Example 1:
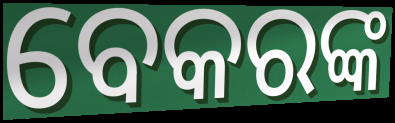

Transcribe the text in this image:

ବେକରଙ୍କ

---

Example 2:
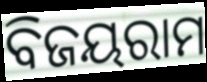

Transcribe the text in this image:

ବିଜୟରାମ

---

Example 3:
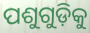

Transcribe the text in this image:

ପଶୁଗୁଡ଼ିକୁ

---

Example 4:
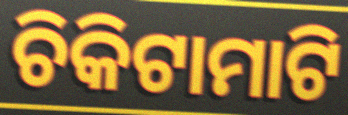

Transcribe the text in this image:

ଚିକିଟାମାଟି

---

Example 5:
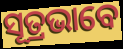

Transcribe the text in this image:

ସୂତ୍ରଭାବେ